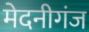
मेदनीगंज